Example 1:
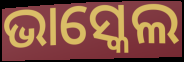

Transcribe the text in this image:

ଭାସ୍କେଲ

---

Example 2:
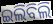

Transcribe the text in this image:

ଇଲିବିଲି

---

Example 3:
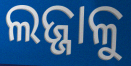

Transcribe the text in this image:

ଲଜ୍ଜାଳୁ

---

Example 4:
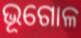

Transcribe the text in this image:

ଭୂଗୋଳ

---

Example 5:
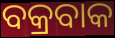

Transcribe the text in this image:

ବକ୍ରବାକ